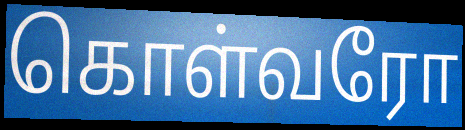
கொள்வரோ